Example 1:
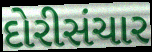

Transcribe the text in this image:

દોરીસંચાર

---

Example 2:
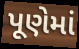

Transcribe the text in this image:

પૂણેમાં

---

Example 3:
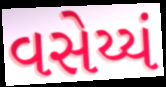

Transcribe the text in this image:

વસેય્યં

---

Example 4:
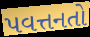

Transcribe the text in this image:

પવત્તનતો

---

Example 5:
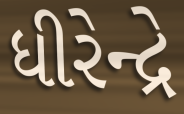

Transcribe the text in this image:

ધીરેન્દ્રે